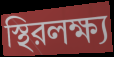
স্থিরলক্ষ্য